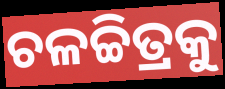
ଚଳଚ୍ଚିତ୍ରକୁ